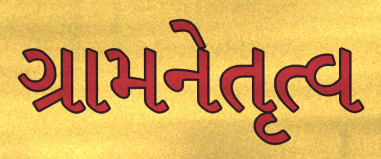
ગ્રામનેતૃત્વ